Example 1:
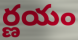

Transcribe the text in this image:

ర్ణయం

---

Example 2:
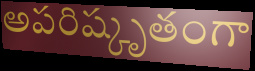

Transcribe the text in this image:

అపరిష్కృతంగా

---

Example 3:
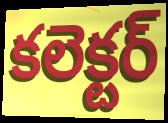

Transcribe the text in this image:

కలెక్టర్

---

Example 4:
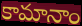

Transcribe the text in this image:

కామానాం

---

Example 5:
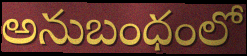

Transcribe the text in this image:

అనుబంధంలో